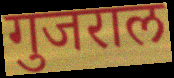
गुजराल